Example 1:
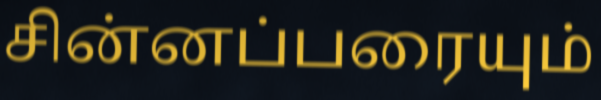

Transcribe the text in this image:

சின்னப்பரையும்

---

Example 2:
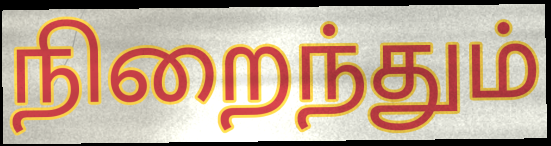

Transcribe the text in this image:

நிறைந்தும்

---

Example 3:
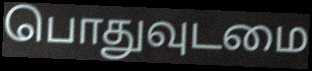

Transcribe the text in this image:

பொதுவுடமை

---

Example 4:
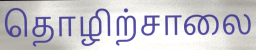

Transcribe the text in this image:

தொழிற்சாலை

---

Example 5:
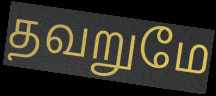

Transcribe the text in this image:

தவறுமே